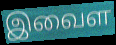
இவைள